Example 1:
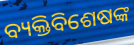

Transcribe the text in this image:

ବ୍ୟକ୍ତିବିଶେଷଙ୍କ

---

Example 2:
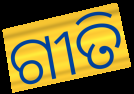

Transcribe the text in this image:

ଗୀତି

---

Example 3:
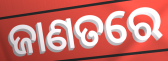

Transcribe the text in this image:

ଜାଣତରେ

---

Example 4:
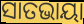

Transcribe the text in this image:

ସାତଭାୟା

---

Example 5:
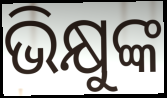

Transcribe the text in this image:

ଭିକ୍ଷୁଙ୍କ